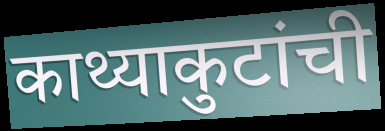
काथ्याकुटांची